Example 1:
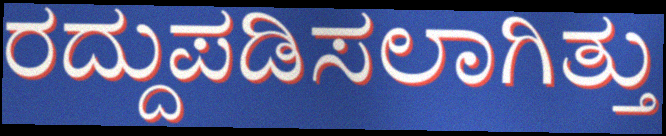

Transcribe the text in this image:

ರದ್ದುಪಡಿಸಲಾಗಿತ್ತು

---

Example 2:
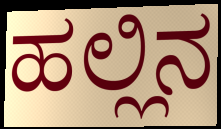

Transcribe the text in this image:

ಹಲ್ಲಿನ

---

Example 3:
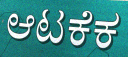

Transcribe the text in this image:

ಆಟಕೆಕ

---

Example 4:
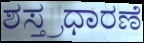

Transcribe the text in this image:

ಶಸ್ತ್ರಧಾರಣೆ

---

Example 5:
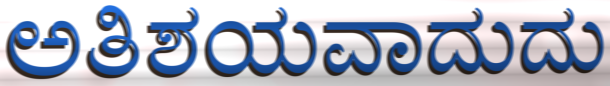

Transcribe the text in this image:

ಅತಿಶಯವಾದುದು